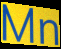
Mn